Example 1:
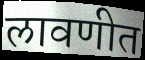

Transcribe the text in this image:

लावणीत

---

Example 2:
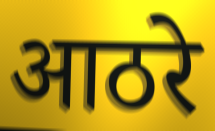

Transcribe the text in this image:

आठरे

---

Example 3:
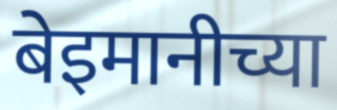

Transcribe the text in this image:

बेइमानीच्या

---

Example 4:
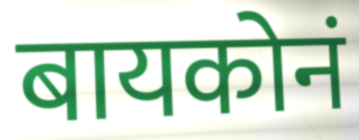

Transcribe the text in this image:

बायकोनं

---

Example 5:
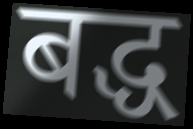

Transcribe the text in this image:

बद्ध